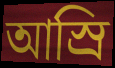
আস্রি